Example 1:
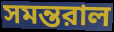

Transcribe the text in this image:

সমন্তরাল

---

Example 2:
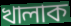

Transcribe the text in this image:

খালাক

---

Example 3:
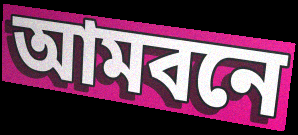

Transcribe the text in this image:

আমবনে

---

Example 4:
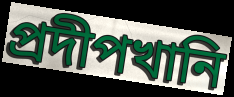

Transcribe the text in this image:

প্রদীপখানি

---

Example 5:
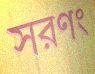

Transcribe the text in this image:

সরণং